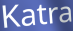
Katra